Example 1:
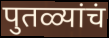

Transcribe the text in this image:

पुतळ्यांचं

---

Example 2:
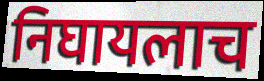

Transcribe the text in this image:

निघायलाच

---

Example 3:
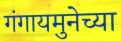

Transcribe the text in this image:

गंगायमुनेच्या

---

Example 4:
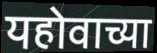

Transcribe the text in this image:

यहोवाच्या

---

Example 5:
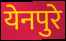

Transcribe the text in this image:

येनपुरे